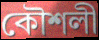
কৌশলী